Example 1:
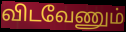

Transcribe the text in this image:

விடவேணும்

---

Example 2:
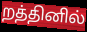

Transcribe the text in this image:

றத்தினில்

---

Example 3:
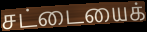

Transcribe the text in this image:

சட்டையைக்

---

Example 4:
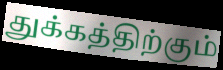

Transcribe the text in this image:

துக்கத்திற்கும்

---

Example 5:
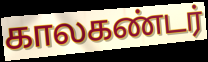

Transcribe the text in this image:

காலகண்டர்